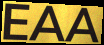
EAA